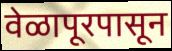
वेळापूरपासून